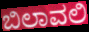
ಬಿಲಾವಲಿ